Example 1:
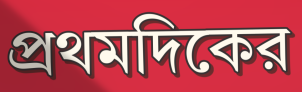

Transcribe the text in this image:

প্রথমদিকের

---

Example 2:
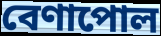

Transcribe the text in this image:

বেণাপোল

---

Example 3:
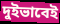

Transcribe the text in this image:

দুইভাবেই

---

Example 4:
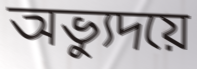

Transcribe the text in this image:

অভ্যুদয়ে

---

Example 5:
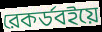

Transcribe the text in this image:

রেকর্ডবইয়ে